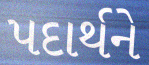
પદાર્થને